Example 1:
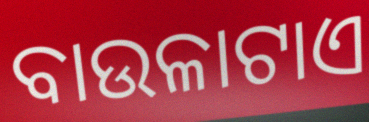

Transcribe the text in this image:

ବାଉଳାଟାଏ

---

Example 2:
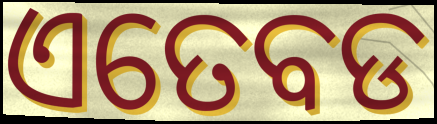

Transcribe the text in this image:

ଏତେବଡ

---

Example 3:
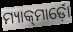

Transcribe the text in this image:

ମ୍ୟାକ୍‍ମାର୍ଡ଼ୋ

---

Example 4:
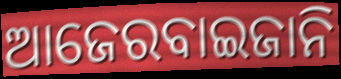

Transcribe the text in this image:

ଆଜେରବାଇଜାନି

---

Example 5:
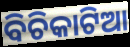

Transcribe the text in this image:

ବିଚିକାଟିଆ